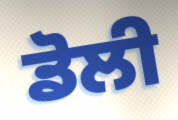
ਡੋਲੀ